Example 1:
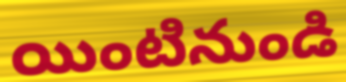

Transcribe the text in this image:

యింటినుండి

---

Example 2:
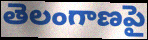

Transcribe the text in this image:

తెలంగాణపై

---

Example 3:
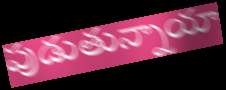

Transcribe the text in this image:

పుడుతున్నాయా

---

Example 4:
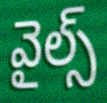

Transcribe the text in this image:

వైల్స్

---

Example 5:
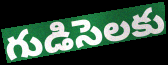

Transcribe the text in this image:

గుడిసెలకు